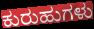
ಕುರುಹುಗಳು